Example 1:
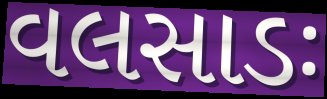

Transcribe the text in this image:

વલસાડઃ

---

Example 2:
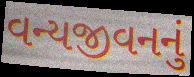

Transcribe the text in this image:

વન્યજીવનનું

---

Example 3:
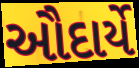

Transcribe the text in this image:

ઔદાર્યે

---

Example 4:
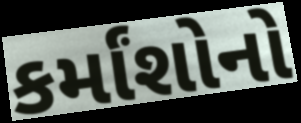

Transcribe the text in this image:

કર્માંશોનો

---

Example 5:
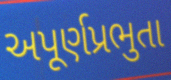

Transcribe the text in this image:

અપૂર્ણપ્રભુતા